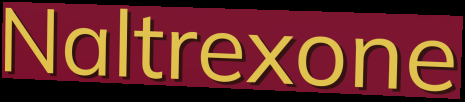
Naltrexone